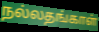
நல்லதங்காள்